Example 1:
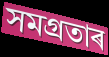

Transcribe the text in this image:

সমগ্ৰতাৰ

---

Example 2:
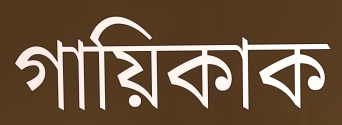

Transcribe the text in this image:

গায়িকাক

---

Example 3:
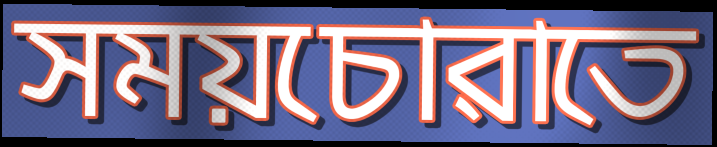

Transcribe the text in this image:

সময়চোৱাতে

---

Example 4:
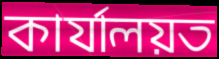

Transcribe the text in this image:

কাৰ্যালয়ত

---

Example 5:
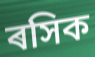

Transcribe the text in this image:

ৰসিক